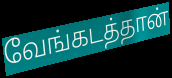
வேங்கடத்தான்